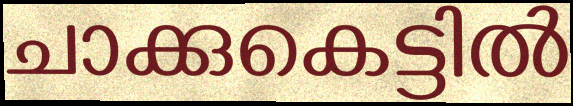
ചാക്കുകെട്ടിൽ